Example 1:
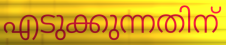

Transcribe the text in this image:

എടുക്കുന്നതിന്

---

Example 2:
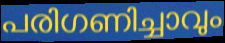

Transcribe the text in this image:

പരിഗണിച്ചാവും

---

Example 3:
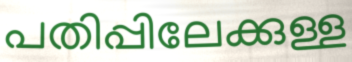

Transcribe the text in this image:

പതിപ്പിലേക്കുള്ള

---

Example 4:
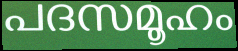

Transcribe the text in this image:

പദസമൂഹം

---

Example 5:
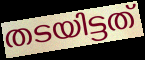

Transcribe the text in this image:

തടയിട്ടത്